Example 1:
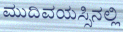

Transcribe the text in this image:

ಮುದಿವಯಸ್ಸಿನಲ್ಲಿ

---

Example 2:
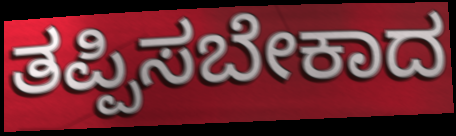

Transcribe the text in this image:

ತಪ್ಪಿಸಬೇಕಾದ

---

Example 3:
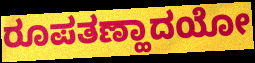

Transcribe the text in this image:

ರೂಪತಣ್ಹಾದಯೋ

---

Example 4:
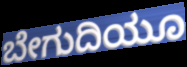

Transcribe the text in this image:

ಬೇಗುದಿಯೂ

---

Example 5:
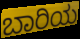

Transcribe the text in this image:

ಬಾರಿಯ